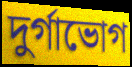
দুর্গাভোগ